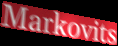
Markovits